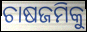
ଚାଷଜମିକୁ